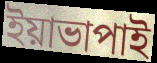
ইয়াভাপাই